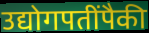
उद्योगपतींपैकी